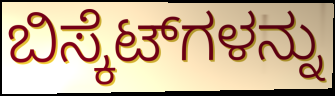
ಬಿಸ್ಕೆಟ್‌ಗಳನ್ನು